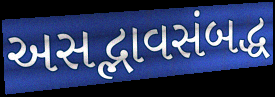
અસદ્ભાવસંબદ્ધ